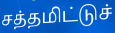
சத்தமிட்டுச்